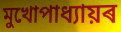
মুখোপাধ্যায়ৰ